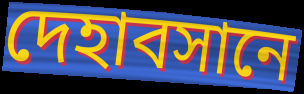
দেহাবসানে